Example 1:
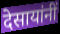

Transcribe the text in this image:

देसायांनीं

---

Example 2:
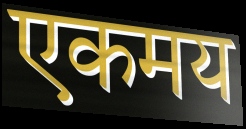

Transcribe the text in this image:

एकमय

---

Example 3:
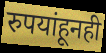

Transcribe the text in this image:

रुपयांहूनही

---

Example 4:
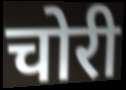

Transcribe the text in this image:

चोरी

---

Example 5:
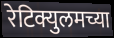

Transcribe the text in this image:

रेटिक्युलमच्या